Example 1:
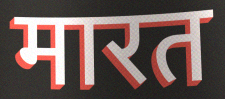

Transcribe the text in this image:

मारत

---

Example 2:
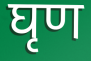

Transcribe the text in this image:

घृण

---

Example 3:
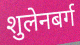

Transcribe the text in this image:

शुलेनबर्ग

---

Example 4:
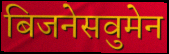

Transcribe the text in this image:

बिजनेसवुमेन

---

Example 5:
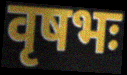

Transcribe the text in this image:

वृषभः